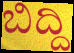
ಬಿದ್ದಿ